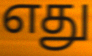
எது